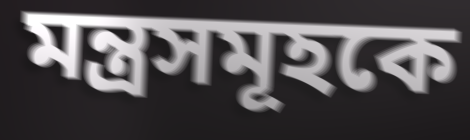
মন্ত্রসমূহকে